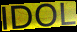
IDOL